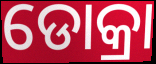
ଡୋକ୍ରା